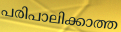
പരിപാലിക്കാത്ത